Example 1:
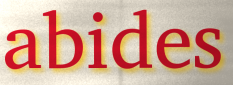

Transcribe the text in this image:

abides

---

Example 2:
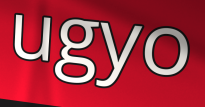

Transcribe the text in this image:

ugyo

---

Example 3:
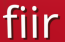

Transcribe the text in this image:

fiir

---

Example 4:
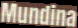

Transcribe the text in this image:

Mundina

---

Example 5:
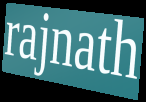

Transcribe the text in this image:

rajnath